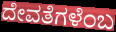
ದೇವತೆಗಳೆಂಬ